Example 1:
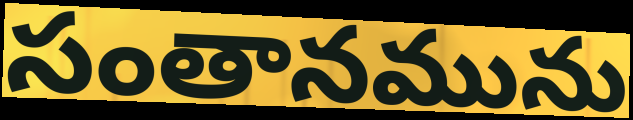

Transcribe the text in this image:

సంతానమును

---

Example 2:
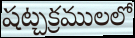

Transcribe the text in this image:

షట్చక్రములలో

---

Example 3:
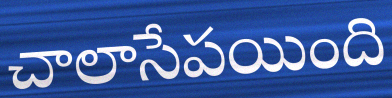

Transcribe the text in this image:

చాలాసేపయింది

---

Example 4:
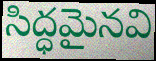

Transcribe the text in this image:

సిద్ధమైనవి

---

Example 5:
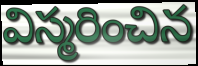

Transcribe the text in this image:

విస్మరించిన